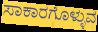
ಸಾಕಾರಗೊಳ್ಳುವ